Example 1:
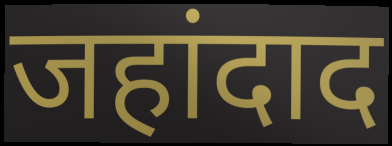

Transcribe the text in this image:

जहांदाद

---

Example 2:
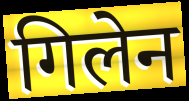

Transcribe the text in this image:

गिलेन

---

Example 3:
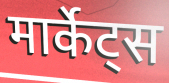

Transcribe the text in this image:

मार्केट्स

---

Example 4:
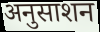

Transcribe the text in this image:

अनुसाशन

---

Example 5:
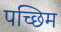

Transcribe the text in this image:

पच्छिम